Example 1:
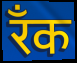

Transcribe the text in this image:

रँक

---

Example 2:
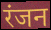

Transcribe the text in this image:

रंजन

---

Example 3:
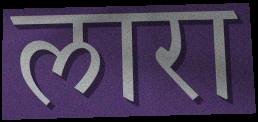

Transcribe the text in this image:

लारा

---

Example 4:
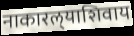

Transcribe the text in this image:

नाकारल्याशिवाय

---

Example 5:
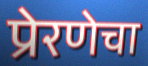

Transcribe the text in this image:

प्रेरणेचा